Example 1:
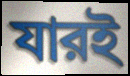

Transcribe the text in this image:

যারই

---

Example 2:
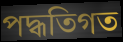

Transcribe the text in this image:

পদ্ধতিগত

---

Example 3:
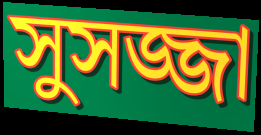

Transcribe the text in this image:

সুসজ্জা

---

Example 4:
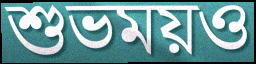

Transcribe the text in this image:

শুভময়ও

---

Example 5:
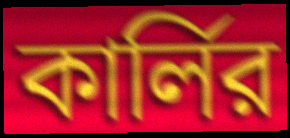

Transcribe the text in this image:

কার্লির